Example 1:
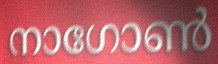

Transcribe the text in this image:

നാഗോൺ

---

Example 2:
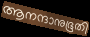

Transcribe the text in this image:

ആനന്ദാനുഭൂതി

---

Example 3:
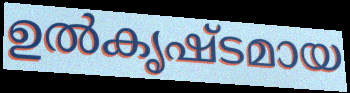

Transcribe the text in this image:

ഉൽകൃഷ്ടമായ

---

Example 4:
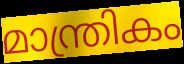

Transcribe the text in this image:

മാന്ത്രികം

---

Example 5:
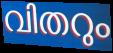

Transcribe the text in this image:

വിതറും